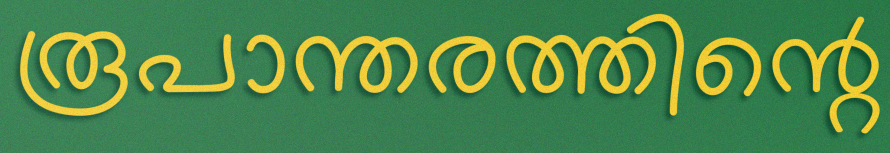
രൂപാന്തരത്തിന്റെ